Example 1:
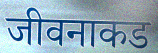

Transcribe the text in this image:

जीवनाकड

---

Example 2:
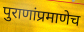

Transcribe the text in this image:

पुराणांप्रमाणेच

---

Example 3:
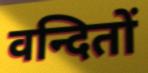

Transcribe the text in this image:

वन्दितों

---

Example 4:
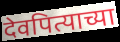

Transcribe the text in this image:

देवपित्याच्या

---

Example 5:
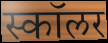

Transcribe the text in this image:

स्कॉलर